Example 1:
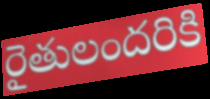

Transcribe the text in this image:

రైతులందరికి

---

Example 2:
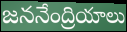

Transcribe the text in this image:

జననేంద్రియాలు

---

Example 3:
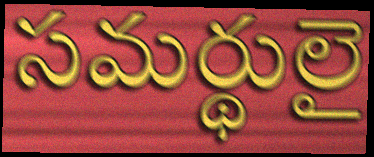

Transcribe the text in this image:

సమర్థులై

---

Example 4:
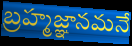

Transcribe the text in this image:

బ్రహ్మజ్ఞానమనే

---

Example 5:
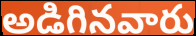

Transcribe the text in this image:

అడిగినవారు